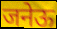
जनेऊ